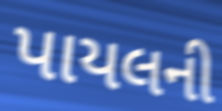
પાયલની